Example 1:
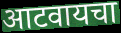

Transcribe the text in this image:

आटवायचा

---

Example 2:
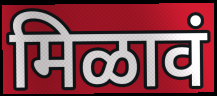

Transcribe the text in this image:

मिळावं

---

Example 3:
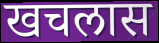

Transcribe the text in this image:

खचलास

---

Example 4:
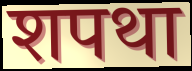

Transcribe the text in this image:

शपथा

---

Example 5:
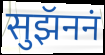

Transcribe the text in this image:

सुझॅननं